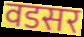
वडसर